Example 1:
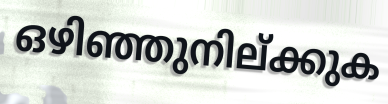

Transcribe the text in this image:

ഒഴിഞ്ഞുനില്ക്കുക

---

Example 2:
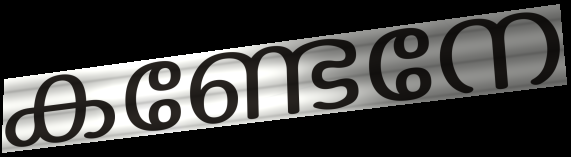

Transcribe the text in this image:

കണ്ടേനേ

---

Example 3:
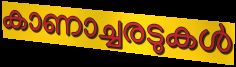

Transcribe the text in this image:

കാണാച്ചരടുകൾ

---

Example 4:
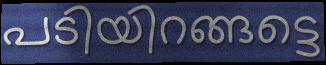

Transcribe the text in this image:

പടിയിറങ്ങട്ടെ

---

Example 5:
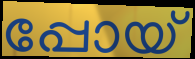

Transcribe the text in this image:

പ്പോയ്